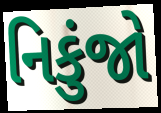
નિકુંજો